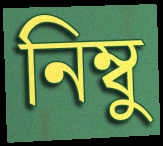
নিম্বু